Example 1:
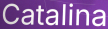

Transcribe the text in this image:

Catalina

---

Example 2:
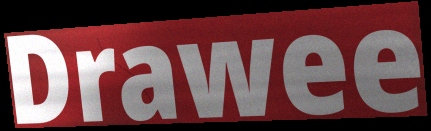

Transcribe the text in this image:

Drawee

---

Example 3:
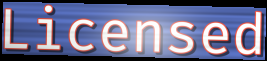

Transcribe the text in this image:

Licensed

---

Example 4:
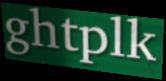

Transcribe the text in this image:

ghtplk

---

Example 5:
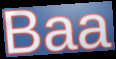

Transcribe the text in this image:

Baa